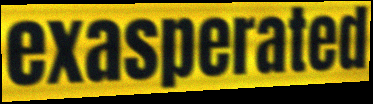
exasperated